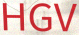
HGV